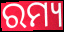
ରମ୍ୟ